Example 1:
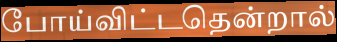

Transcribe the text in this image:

போய்விட்டதென்றால்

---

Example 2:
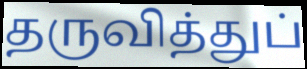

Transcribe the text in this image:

தருவித்துப்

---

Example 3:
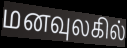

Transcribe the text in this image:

மனவுலகில்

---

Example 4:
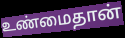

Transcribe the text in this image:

உண்மைதான்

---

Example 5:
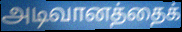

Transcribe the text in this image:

அடிவானத்தைக்